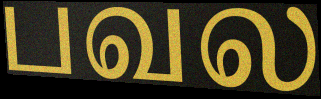
பவல